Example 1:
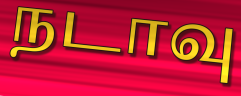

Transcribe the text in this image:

நடாவு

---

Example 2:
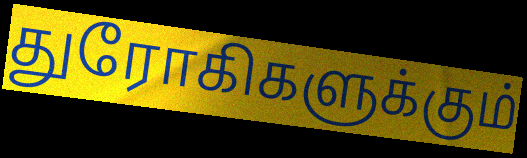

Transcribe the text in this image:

துரோகிகளுக்கும்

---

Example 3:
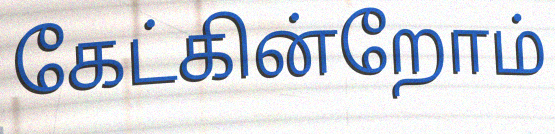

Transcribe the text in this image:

கேட்கின்றோம்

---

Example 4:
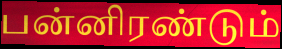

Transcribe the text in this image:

பன்னிரண்டும்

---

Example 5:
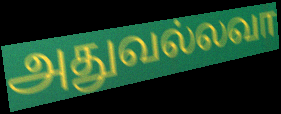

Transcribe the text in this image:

அதுவல்லவா